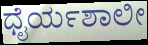
ಧೈರ್ಯಶಾಲೀ